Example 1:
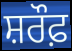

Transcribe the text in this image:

ਸ਼ਰੌਫ਼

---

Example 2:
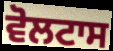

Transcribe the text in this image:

ਵੋਲਟਾਸ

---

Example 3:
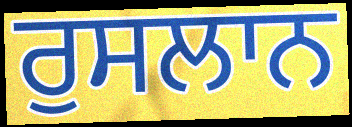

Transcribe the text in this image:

ਰੁਸਲਾਨ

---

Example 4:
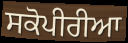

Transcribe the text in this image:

ਸਕੋਪੀਰੀਆ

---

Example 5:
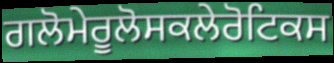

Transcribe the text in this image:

ਗਲੋਮੇਰੂਲੋਸਕਲੇਰੋਟਿਕਸ